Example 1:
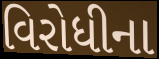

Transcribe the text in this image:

વિરોધીના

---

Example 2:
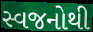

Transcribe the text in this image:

સ્વજનોથી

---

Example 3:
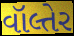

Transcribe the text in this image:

વૉલ્તેર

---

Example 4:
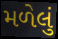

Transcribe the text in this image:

મળેલું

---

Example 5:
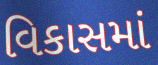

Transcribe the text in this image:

વિકાસમાં